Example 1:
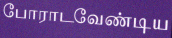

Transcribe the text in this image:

போராடவேண்டிய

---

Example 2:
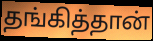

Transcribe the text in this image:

தங்கித்தான்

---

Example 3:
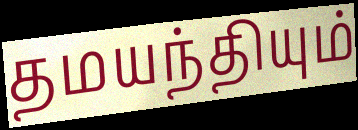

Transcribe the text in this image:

தமயந்தியும்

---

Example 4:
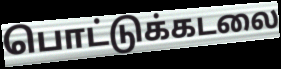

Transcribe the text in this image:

பொட்டுக்கடலை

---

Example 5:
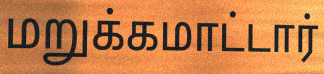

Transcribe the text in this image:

மறுக்கமாட்டார்